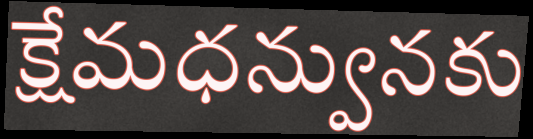
క్షేమధన్వునకు